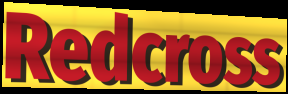
Redcross